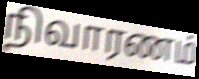
நிவாரணம்